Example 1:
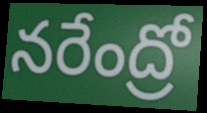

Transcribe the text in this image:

నరేంద్రో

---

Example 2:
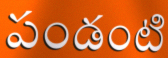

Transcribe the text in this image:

పండంటి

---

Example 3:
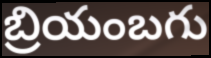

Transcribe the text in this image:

బ్రియంబగు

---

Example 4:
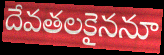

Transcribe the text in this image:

దేవతలకైననూ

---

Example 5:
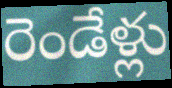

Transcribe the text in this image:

రెండేళ్లు